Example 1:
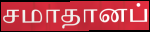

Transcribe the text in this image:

சமாதானப்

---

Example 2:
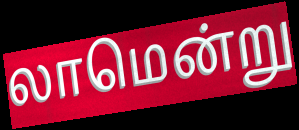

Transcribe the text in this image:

லாமென்று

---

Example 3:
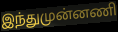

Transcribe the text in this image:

இந்துமுன்னணி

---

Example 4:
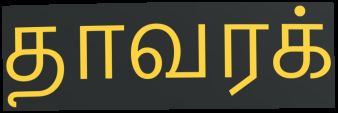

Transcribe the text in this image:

தாவரக்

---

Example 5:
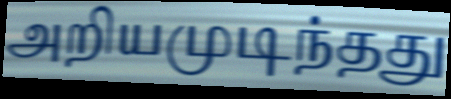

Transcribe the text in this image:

அறியமுடிந்தது